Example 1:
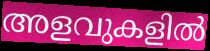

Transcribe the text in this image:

അളവുകളിൽ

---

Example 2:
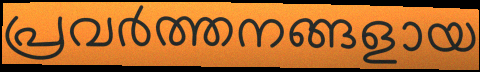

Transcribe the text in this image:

പ്രവർത്തനങ്ങളായ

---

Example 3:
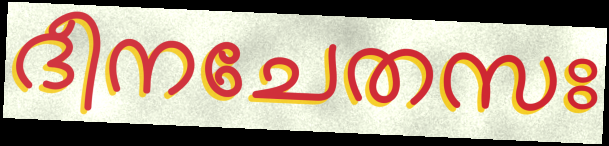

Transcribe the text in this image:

ദീനചേതസഃ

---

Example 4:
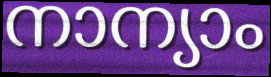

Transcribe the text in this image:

നാന്യാം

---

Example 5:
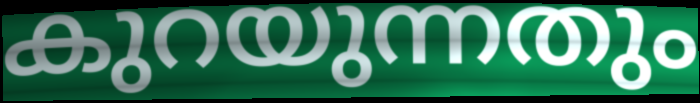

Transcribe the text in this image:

കുറയുന്നതും